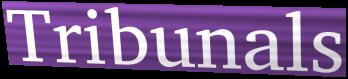
Tribunals